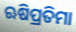
ଋଷିପ୍ରତିମା